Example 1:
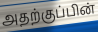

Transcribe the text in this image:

அதற்குப்பின்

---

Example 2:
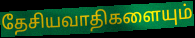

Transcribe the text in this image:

தேசியவாதிகளையும்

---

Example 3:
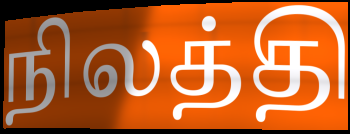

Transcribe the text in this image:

நிலத்தி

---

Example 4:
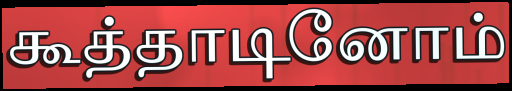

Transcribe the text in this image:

கூத்தாடினோம்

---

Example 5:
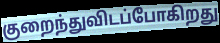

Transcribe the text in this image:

குறைந்துவிடப்போகிறது